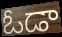
ఓడా